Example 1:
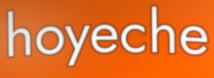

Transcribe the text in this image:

hoyeche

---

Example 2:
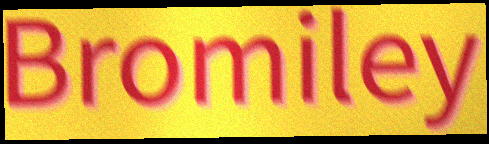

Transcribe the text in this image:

Bromiley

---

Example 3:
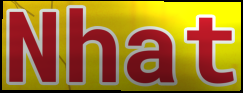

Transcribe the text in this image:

Nhat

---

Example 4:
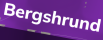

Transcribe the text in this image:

Bergshrund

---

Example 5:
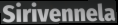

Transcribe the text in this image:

Sirivennela